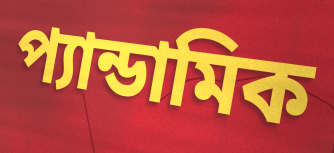
প্যান্ডামিক